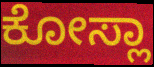
ಕೋಸ್ಲಾ